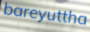
bareyuttha